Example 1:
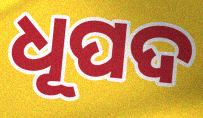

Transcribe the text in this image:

ଧୂପଦ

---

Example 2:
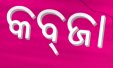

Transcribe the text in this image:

କବ୍‌ଜା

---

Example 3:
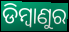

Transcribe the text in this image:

ଡିମ୍ବାଣୁର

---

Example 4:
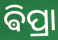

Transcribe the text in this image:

ଵିପ୍ରା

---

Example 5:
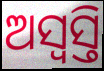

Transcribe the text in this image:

ଅସ୍ୱସ୍ତି